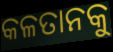
କଳତାନକୁ